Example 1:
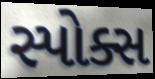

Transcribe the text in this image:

સ્પોક્સ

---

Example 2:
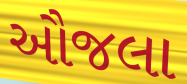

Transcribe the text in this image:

ઔજલા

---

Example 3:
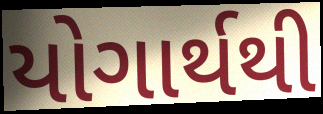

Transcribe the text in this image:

યોગાર્થથી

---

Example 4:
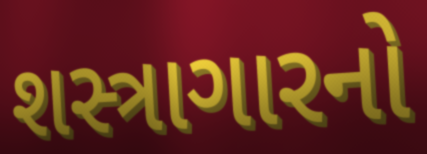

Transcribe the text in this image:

શસ્ત્રાગારનો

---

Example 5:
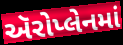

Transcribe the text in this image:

ઍરોપ્લેનમાં